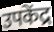
उपकेंद्र